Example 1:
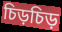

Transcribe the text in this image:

চিড়চিড়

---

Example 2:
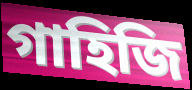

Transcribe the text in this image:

গাহিজি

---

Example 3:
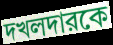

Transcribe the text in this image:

দখলদারকে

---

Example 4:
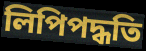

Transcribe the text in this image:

লিপিপদ্ধতি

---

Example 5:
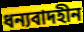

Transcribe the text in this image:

ধন্যবাদহীন